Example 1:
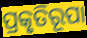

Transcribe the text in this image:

ପ୍ରକୃତିରୂପା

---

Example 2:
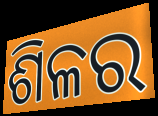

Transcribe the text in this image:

ଶିଳର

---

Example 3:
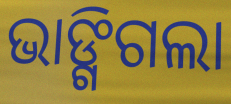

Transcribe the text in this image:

ଭାଙ୍ଗିଗଲା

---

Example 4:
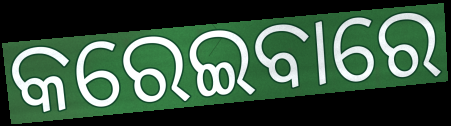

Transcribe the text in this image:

କରେଇବାରେ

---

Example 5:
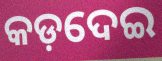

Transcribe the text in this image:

କଡ଼ଦେଇ